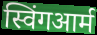
स्विंगआर्म